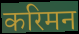
करिमन